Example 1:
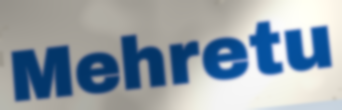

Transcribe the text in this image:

Mehretu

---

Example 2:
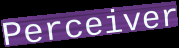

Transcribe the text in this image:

Perceiver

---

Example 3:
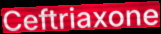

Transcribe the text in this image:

Ceftriaxone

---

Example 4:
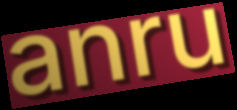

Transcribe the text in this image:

anru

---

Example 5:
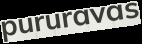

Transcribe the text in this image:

pururavas